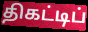
திகட்டிப்